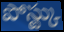
పోస్ట్కు